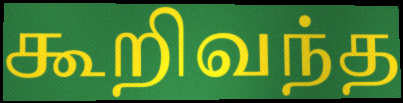
கூறிவந்த